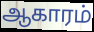
ஆகாரம்